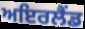
ਅਇਰਲੈਂਡ